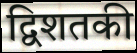
द्विशतकी